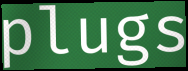
plugs